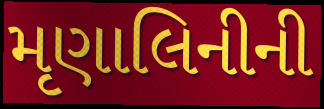
મૃણાલિનીની